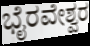
ಭೈರವೇಶ್ವರ